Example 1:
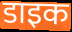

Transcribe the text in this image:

डाइक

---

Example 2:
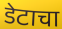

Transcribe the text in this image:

डेटाचा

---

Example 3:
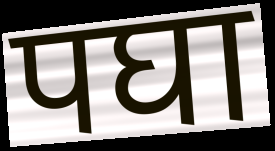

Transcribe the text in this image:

पघा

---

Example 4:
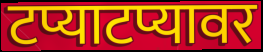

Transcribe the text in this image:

टप्याटप्यावर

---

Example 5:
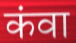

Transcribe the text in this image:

कंवा